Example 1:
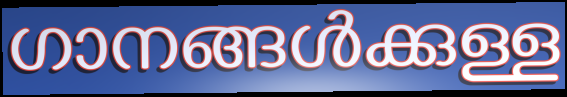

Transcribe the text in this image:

ഗാനങ്ങൾക്കുള്ള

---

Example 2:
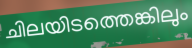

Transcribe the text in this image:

ചിലയിടത്തെങ്കിലും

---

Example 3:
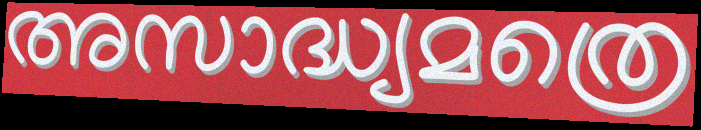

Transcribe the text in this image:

അസാദ്ധ്യമത്രെ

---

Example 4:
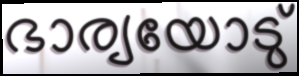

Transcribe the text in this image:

ഭാര്യയോടു്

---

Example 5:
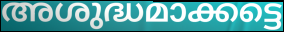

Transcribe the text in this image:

അശുദ്ധമാക്കട്ടെ